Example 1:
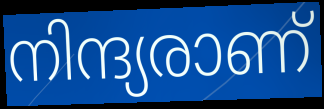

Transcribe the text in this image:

നിന്ദ്യരാണ്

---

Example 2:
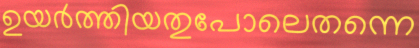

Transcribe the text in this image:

ഉയർത്തിയതുപോലെതന്നെ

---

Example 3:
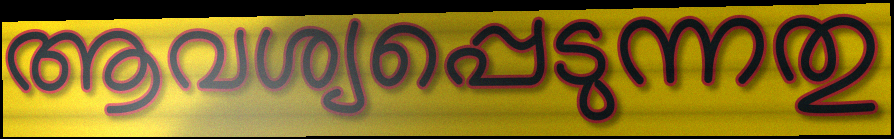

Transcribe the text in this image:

ആവശ്യപ്പെടുന്നതു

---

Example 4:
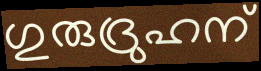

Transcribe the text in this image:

ഗുരുദ്രുഹന്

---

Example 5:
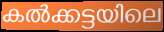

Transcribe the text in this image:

കൽക്കട്ടയിലെ